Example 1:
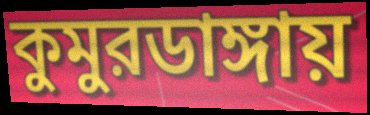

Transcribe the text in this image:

কুমুরডাঙ্গায়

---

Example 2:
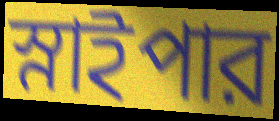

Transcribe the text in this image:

স্নাইপার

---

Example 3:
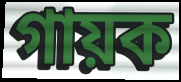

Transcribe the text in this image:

গায়ক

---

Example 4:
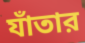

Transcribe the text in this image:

যাঁতার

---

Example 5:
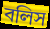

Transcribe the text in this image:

বলিস